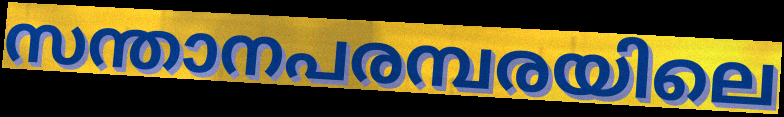
സന്താനപരമ്പരയിലെ